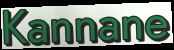
Kannane